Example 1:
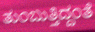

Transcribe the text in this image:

ತುಂಬುತ್ತಿದ್ದಂತೆ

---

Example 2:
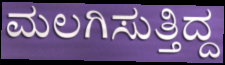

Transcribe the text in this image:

ಮಲಗಿಸುತ್ತಿದ್ದ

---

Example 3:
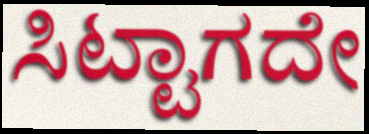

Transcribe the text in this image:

ಸಿಟ್ಟಾಗದೇ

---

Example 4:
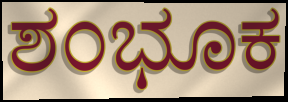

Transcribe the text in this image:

ಶಂಭೂಕ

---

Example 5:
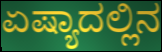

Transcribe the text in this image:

ಏಷ್ಯಾದಲ್ಲಿನ